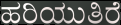
ಹರಿಯುತಿರೆ